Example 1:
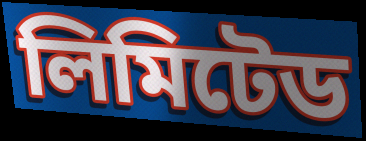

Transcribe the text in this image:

লিমিটেড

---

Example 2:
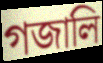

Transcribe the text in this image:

গজালি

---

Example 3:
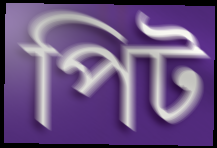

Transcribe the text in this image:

পিট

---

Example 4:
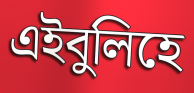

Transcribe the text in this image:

এইবুলিহে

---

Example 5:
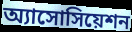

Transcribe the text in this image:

অ্যাসোসিয়েশন